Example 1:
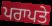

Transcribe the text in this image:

ਪਰਾਪਤੇ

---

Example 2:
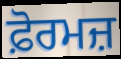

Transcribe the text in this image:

ਫ਼ੋਰਮਜ਼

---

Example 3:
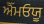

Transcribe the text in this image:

ਐੱਮਓਯੂ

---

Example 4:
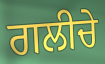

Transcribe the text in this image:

ਗਲੀਚੇ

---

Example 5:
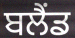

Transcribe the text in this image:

ਬਲੈਂਡ